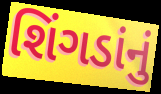
શિંગડાંનું